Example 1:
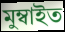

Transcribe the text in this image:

মুম্বাইত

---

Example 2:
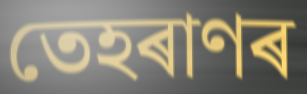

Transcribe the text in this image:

তেহৰাণৰ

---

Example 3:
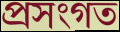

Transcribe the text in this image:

প্ৰসংগত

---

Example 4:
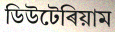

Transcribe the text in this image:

ডিউটেৰিয়াম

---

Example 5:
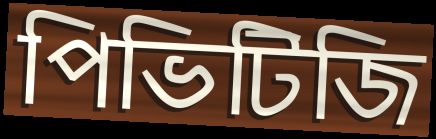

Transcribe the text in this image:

পিভিটিজি